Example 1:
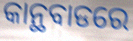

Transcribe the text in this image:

କାନ୍ଥବାଡରେ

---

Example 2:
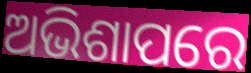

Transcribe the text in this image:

ଅଭିଶାପରେ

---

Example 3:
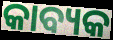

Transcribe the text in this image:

କାବ୍ୟକ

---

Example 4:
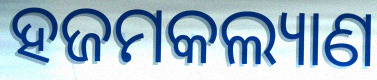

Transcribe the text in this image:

ହଜମକଲ୍ୟାଣ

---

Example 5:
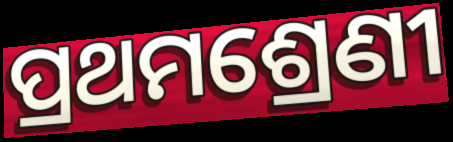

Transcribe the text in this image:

ପ୍ରଥମଶ୍ରେଣୀ